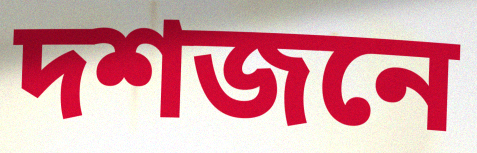
দশজনে